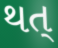
થત્